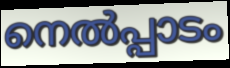
നെൽപ്പാടം